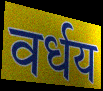
वर्धय